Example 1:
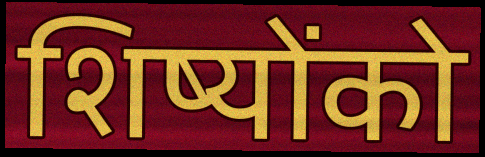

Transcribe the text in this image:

शिष्योंको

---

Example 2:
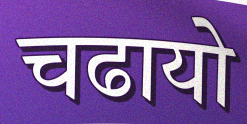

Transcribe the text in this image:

चढायो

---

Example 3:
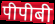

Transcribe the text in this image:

पीपीबी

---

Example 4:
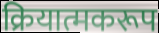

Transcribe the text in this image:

क्रियात्मकरूप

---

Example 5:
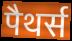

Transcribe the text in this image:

पैथर्स